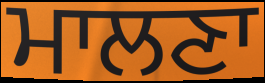
ਮਾਲਣਾ